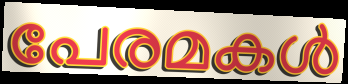
പേരമകൾ